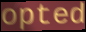
opted